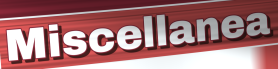
Miscellanea